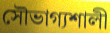
সৌভাগ্যশালী